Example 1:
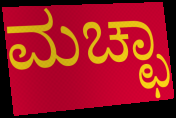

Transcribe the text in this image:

ಮಚ್ಛಾ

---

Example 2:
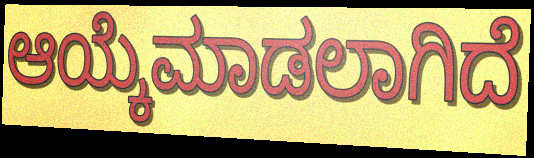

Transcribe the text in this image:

ಆಯ್ಕೆಮಾಡಲಾಗಿದೆ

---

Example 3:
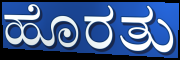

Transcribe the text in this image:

ಹೊರತು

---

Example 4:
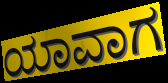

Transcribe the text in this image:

ಯಾವಾಗ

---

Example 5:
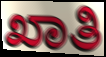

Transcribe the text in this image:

ಖಾತಿ